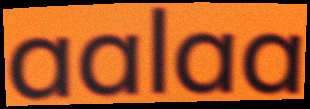
aalaa